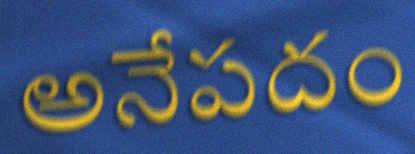
అనేపదం